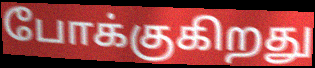
போக்குகிறது